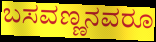
ಬಸವಣ್ಣನವರೂ